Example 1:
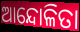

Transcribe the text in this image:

ଆନ୍ଦୋଳିତା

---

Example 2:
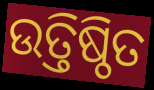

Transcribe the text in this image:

ଉତ୍ତିଷ୍ଠିତ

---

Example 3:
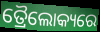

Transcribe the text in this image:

ତ୍ରୈଲୋକ୍ୟରେ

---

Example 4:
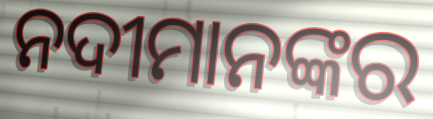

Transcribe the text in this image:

ନଦୀମାନଙ୍କର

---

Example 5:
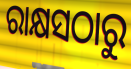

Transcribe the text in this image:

ରାକ୍ଷସଠାରୁ